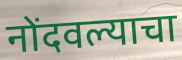
नोंदवल्याचा